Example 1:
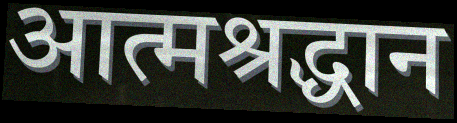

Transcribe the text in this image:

आत्मश्रद्धान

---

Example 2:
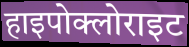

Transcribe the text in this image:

हाइपोक्लोराइट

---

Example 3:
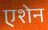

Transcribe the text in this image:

एशेन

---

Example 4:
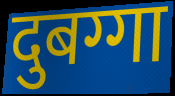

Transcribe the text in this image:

दुबग्गा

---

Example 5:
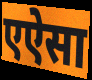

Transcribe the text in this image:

एऐसा